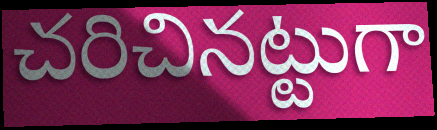
చరిచినట్టుగా